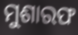
ମୁଶାରଫ